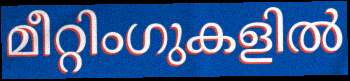
മീറ്റിംഗുകളിൽ